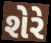
શેરે